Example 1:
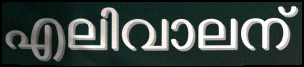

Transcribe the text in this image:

എലിവാലന്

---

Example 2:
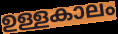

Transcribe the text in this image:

ഉള്ളകാലം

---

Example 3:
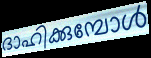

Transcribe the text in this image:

ദാഹിക്കുമ്പോൾ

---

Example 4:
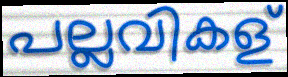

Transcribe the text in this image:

പല്ലവികള്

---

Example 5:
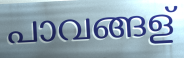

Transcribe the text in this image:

പാവങ്ങള്